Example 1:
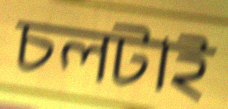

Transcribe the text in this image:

চলটাই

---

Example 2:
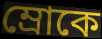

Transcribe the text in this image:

ম্রোকে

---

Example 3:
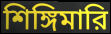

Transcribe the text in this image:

শিঙ্গিমারি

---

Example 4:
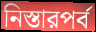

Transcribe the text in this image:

নিস্তারপর্ব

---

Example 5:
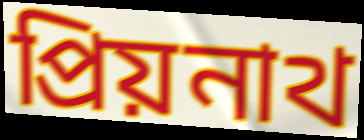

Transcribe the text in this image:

প্রিয়নাথ